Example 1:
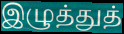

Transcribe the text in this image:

இழுத்துத்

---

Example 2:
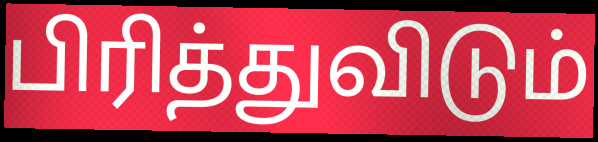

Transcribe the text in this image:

பிரித்துவிடும்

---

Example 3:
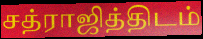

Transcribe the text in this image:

சத்ராஜித்திடம்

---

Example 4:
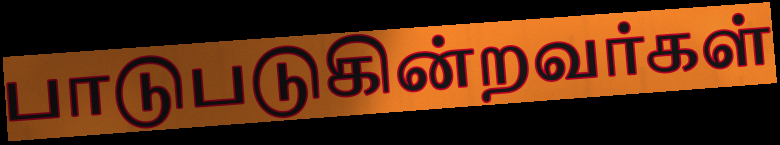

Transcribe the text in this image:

பாடுபடுகின்றவர்கள்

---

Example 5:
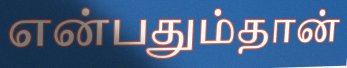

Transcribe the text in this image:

என்பதும்தான்